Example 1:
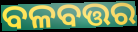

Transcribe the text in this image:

ବଳବତ୍ତର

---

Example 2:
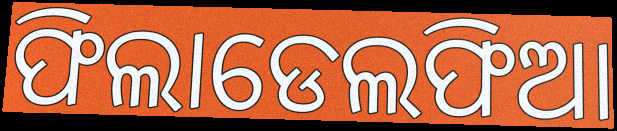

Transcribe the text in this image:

ଫିଲାଡେଲଫିଆ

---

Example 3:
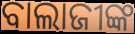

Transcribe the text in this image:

ବାଲାଜୀଙ୍କ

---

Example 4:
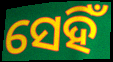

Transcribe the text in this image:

ସେହିଁ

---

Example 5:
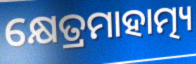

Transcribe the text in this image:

କ୍ଷେତ୍ରମାହାତ୍ମ୍ୟ